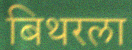
बिथरला